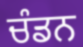
ਚੰਡਨ